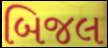
બિજલ